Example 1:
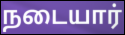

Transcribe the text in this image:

நடையார்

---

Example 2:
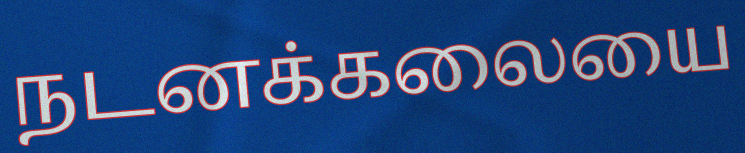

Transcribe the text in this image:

நடனக்கலையை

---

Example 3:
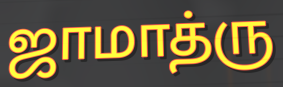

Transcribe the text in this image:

ஜாமாத்ரு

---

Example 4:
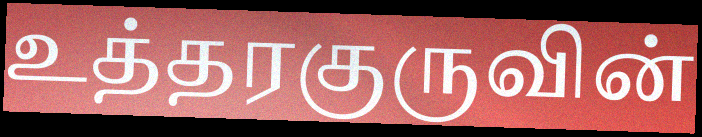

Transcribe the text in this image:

உத்தரகுருவின்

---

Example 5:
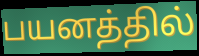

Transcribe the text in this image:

பயனத்தில்